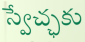
స్వేచ్ఛకు